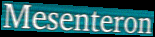
Mesenteron